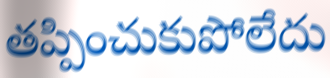
తప్పించుకుపోలేదు